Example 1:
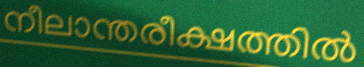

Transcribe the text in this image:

നീലാന്തരീക്ഷത്തിൽ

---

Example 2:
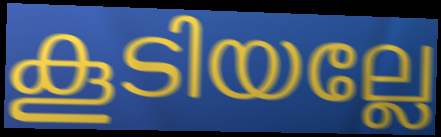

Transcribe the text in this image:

കൂടിയല്ലേ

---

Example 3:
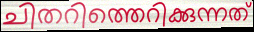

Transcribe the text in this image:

ചിതറിത്തെറിക്കുന്നത്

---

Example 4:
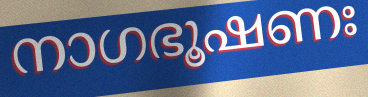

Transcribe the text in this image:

നാഗഭൂഷണഃ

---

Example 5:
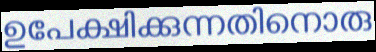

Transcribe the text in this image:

ഉപേക്ഷിക്കുന്നതിനൊരു